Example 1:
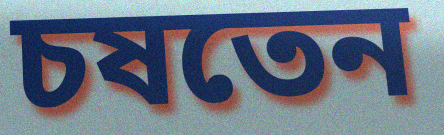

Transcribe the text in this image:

চষতেন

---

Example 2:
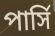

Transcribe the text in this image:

পার্সি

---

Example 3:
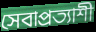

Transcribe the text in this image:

সেবাপ্রত্যাশী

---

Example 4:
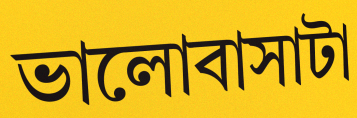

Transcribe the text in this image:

ভালোবাসাটা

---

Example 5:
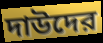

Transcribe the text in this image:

দাউদের